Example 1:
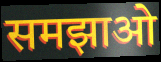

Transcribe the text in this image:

समझाओ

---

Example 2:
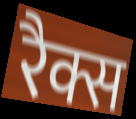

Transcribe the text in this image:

रैक्स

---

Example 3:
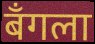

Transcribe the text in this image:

बँगला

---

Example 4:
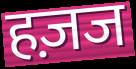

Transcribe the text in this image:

हज़ज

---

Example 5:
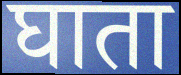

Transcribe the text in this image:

घाता